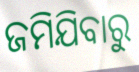
ଜମିଯିବାରୁ